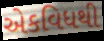
એકવિધથી